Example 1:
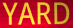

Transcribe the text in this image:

YARD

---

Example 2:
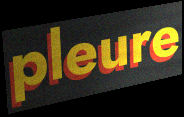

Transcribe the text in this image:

pleure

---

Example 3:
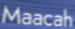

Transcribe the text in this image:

Maacah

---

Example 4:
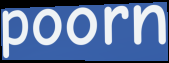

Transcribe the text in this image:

poorn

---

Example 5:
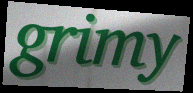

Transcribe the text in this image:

grimy